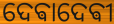
ଦେଵାଦେଵୀ